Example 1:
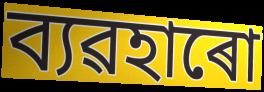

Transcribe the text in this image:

ব্যৱহাৰো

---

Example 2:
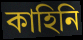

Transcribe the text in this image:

কাহিনি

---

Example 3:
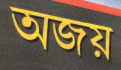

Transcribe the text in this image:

অজয়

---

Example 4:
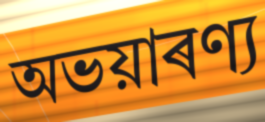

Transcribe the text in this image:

অভয়াৰণ্য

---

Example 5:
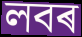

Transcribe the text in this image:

লবৰ